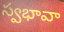
స్వభావా